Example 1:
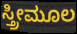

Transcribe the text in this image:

ಸ್ತ್ರೀಮೂಲ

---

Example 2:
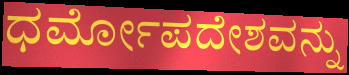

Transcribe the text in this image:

ಧರ್ಮೋಪದೇಶವನ್ನು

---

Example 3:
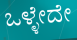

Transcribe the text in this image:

ಒಳ್ಳೇದೇ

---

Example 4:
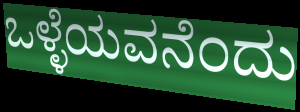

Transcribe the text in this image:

ಒಳ್ಳೆಯವನೆಂದು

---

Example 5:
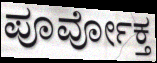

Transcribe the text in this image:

ಪೂರ್ವೋಕ್ತ